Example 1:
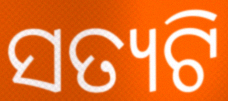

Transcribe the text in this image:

ସତ୍ୟଟି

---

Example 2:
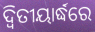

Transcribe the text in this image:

ଦ୍ଵିତୀୟାର୍ଦ୍ଧରେ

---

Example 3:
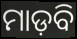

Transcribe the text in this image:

ମାଡ଼ବି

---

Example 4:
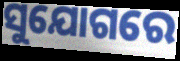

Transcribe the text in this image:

ସୁଯୋଗରେ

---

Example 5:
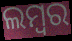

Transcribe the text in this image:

ଲମ୍ବର